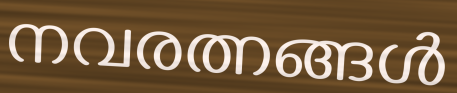
നവരത്നങ്ങൾ